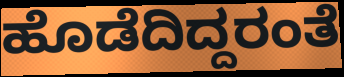
ಹೊಡೆದಿದ್ದರಂತೆ